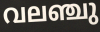
വലഞ്ചു